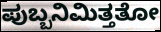
ಪುಬ್ಬನಿಮಿತ್ತತೋ